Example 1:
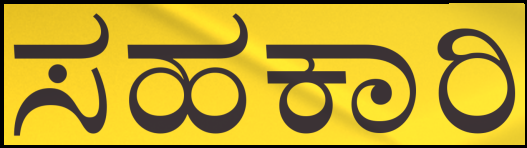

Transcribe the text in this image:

ಸಹಕಾರಿ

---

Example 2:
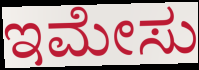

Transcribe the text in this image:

ಇಮೇಸು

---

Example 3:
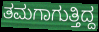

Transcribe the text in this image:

ತಮಗಾಗುತ್ತಿದ್ದ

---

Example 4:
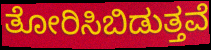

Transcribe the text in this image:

ತೋರಿಸಿಬಿಡುತ್ತವೆ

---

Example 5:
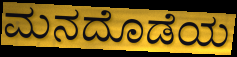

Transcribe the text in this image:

ಮನದೊಡೆಯ